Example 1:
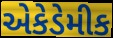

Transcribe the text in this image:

એકેડેમીક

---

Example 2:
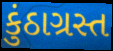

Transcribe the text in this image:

કુંઠાગ્રસ્ત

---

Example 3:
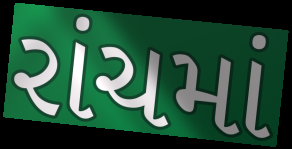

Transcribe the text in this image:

રાંચમાં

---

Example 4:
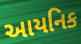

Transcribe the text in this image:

આયનિક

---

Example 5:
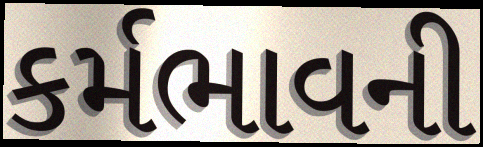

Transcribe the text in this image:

કર્મભાવની